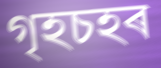
গৃহচহৰ